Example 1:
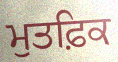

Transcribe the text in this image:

ਮੁਤਫ਼ਿਕ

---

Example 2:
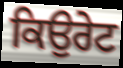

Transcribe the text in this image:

ਕਿਉਰੇਟ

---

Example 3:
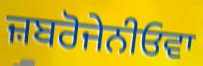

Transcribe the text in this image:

ਜ਼ਬਰੋਜੇਨੀਓਵਾ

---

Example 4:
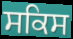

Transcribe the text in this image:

ਸਕਿਸ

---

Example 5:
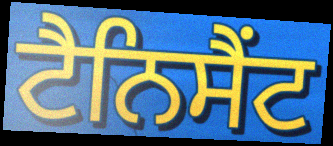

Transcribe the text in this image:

ਟੈਨਿਸੈਂਟ